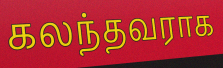
கலந்தவராக